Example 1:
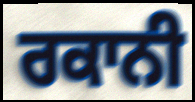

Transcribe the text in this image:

ਰਕਾਨੀ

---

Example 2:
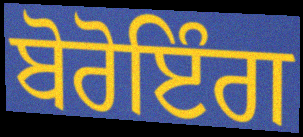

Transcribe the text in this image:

ਬੋਰੋਇੰਗ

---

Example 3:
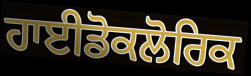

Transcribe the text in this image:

ਹਾਈਡੋਕਲੋਰਿਕ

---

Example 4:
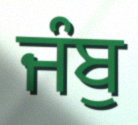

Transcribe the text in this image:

ਜੰਬੁ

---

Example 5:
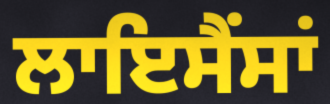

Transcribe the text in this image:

ਲਾਇਸੈਂਸਾਂ